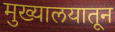
मुख्यालयातून